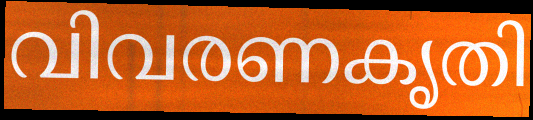
വിവരണകൃതി